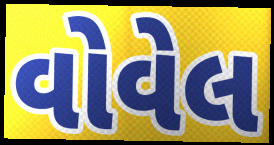
વોવેલ